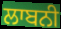
ਲਾਬਨੀ